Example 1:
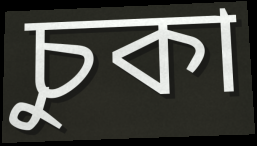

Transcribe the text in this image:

চুকা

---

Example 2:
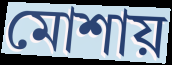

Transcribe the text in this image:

মোশায়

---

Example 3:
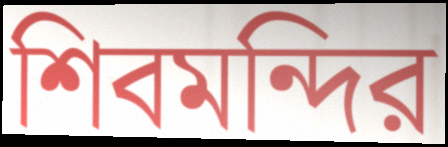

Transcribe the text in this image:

শিবমন্দির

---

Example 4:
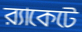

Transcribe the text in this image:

র‍্যাকেটে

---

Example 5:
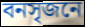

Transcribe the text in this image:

বনসৃজনে